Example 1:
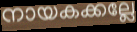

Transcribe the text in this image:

നായകക്കല്ലേ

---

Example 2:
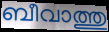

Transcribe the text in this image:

ബീവാത്തു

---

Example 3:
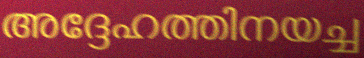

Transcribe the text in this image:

അദ്ദേഹത്തിനയച്ച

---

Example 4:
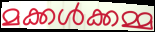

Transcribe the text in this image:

മക്കൾക്കമ്മ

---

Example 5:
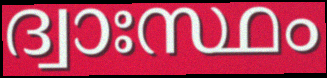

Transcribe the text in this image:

ദ്വാഃസ്ഥം